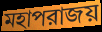
মহাপরাজয়